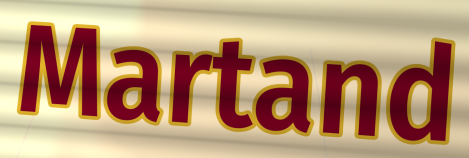
Martand